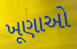
ખૂણાઓ